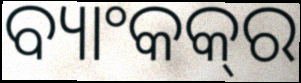
ବ୍ୟାଂକକ୍‍ର